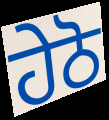
ਹੇਠੋ